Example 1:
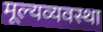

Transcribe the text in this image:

मूल्यव्यवस्था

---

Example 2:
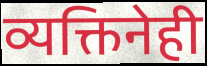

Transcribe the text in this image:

व्यक्तिनेही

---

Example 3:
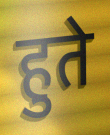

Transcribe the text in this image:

हुते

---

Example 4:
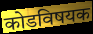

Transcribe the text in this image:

कोडविषयक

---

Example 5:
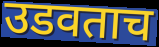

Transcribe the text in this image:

उडवताच